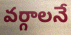
వర్గాలనే